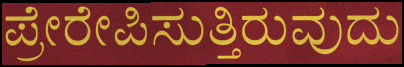
ಪ್ರೇರೇಪಿಸುತ್ತಿರುವುದು